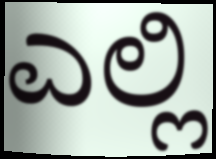
ಎಲ್ಲಿ